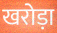
खरोड़ा